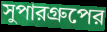
সুপারগ্রুপের